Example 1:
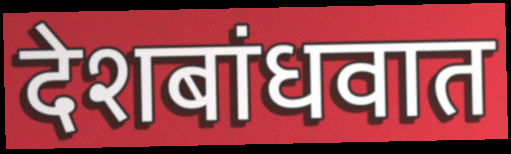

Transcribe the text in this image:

देशबांधवात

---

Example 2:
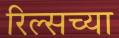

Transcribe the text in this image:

रिल्सच्या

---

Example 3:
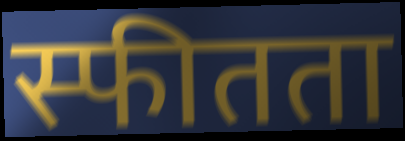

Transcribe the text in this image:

स्फीतता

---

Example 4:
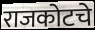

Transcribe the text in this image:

राजकोटचे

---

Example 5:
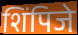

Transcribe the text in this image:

शिंपिजे